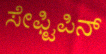
ಸೇಫ್ಟಿಪಿನ್